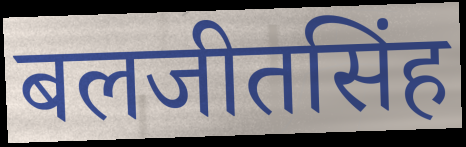
बलजीतसिंह